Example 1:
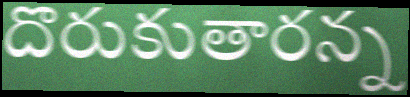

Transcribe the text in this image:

దొరుకుతారన్న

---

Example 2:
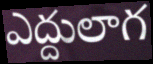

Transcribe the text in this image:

ఎద్దులాగ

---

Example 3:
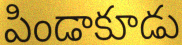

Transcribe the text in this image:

పిండాకూడు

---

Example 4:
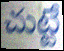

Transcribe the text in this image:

చుట్టే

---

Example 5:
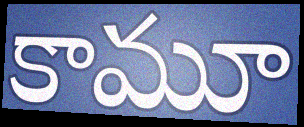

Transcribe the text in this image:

కామూ